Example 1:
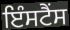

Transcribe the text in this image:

ਇੰਸਟੈਂਸ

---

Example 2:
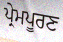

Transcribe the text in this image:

ਪ੍ਰੇਮਪੂਰਣ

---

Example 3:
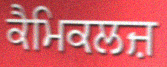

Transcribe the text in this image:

ਕੈਮਿਕਲਜ਼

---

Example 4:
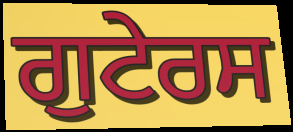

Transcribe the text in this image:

ਗੁਟੇਰਸ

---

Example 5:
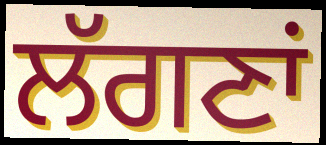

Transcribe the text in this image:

ਲੱਗਣਾਂ